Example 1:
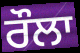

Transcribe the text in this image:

ਰੌਲਾ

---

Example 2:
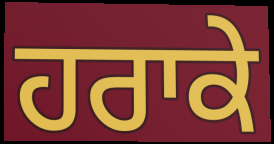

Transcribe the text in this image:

ਹਰਾਕੇ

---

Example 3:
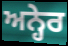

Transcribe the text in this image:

ਅਨ੍ਹੇਰ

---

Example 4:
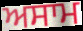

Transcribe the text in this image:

ਅਸਾਮ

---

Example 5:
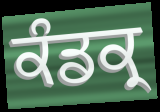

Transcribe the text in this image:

ਕੰਡਕ੍ਰ